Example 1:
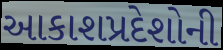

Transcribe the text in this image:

આકાશપ્રદેશોની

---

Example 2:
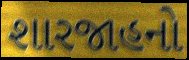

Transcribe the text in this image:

શારજાહનો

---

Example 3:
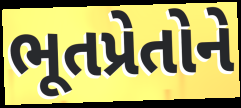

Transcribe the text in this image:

ભૂતપ્રેતોને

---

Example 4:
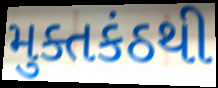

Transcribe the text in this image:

મુક્તકંઠથી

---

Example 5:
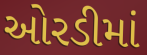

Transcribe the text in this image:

ઓરડીમાં